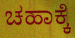
ಚಹಾಕ್ಕೆ